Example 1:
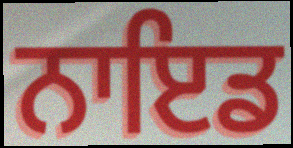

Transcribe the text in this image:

ਨਾਇਡ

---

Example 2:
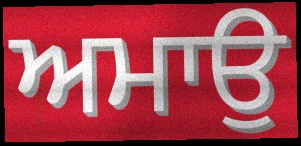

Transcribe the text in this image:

ਅਮਾਉ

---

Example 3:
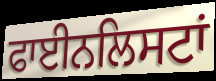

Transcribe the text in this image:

ਫਾਈਨਲਿਸਟਾਂ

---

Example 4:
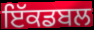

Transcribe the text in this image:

ਇੱਕਡਬਲ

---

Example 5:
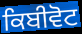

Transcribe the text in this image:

ਕਿਬੀਵੋਟ